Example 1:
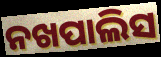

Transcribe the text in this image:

ନଖପାଲିସ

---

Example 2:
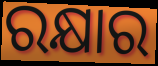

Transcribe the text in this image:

ରକ୍ଷାର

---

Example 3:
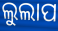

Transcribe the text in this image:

ଲୁଲାପ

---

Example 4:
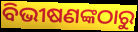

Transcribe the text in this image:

ବିଭୀଷଣଙ୍କଠାରୁ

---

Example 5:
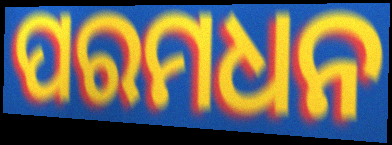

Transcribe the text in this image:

ପରମଧନ